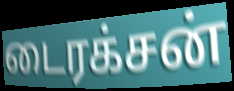
டைரக்சன்